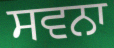
ਸਵਨਾ